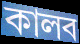
কালব